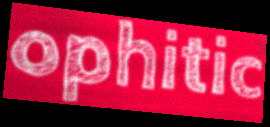
ophitic